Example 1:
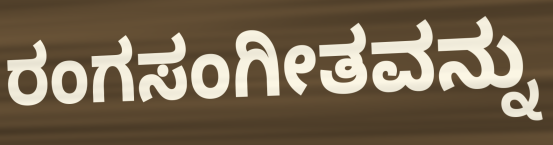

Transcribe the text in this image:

ರಂಗಸಂಗೀತವನ್ನು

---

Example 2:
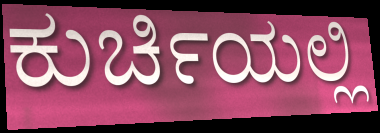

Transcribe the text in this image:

ಕುರ್ಚಿಯಲ್ಲಿ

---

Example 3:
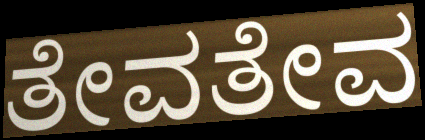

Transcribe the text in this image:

ತೇವತೇವ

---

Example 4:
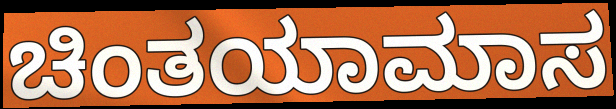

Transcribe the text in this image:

ಚಿಂತಯಾಮಾಸ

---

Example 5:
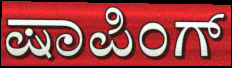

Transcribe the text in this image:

ಷಾಪಿಂಗ್